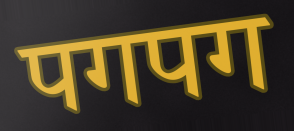
पगपग